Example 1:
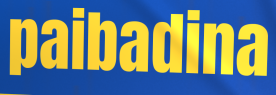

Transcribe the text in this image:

paibadina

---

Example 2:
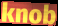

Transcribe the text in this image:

knob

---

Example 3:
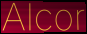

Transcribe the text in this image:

Alcor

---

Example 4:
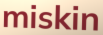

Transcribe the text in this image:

miskin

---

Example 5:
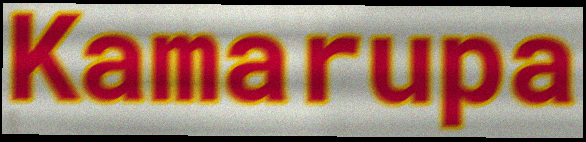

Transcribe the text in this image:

Kamarupa